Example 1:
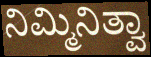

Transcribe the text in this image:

ನಿಮ್ಮಿನಿತ್ವಾ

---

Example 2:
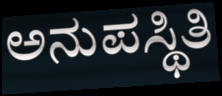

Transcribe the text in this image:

ಅನುಪಸ್ಥಿತಿ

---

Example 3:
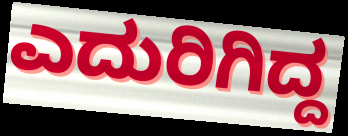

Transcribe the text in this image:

ಎದುರಿಗಿದ್ದ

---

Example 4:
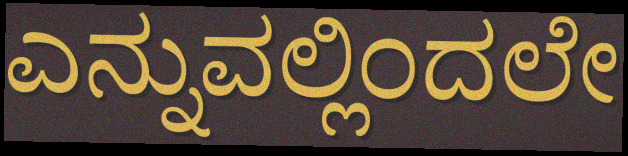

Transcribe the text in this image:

ಎನ್ನುವಲ್ಲಿಂದಲೇ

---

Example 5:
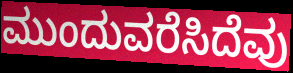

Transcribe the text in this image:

ಮುಂದುವರೆಸಿದೆವು